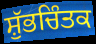
ਸ਼ੁੱਭਚਿੰਤਕ